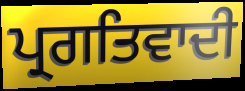
ਪ੍ਰਗਤਿਵਾਦੀ